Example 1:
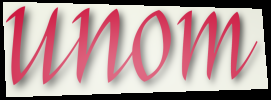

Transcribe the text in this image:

unom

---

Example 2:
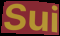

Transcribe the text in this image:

Sui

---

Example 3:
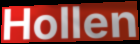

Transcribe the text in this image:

Hollen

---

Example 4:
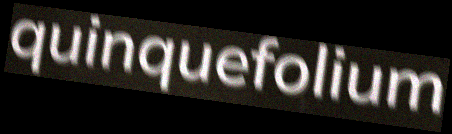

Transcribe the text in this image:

quinquefolium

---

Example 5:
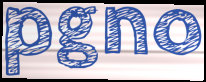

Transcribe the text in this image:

pgno